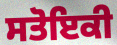
ਸਤੋਇਕੀ